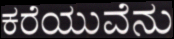
ಕರೆಯುವೆನು